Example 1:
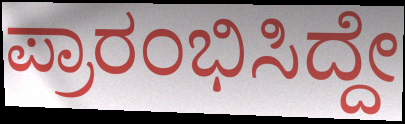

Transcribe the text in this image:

ಪ್ರಾರಂಭಿಸಿದ್ದೇ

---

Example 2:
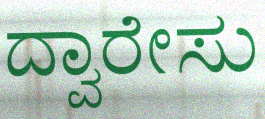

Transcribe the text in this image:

ದ್ವಾರೇಸು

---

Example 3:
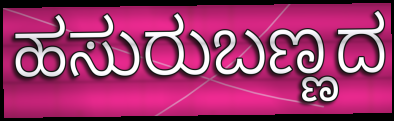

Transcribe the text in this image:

ಹಸುರುಬಣ್ಣದ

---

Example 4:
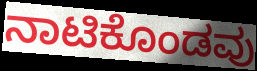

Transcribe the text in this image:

ನಾಟಿಕೊಂಡವು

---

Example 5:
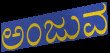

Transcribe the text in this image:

ಅಂಜುವ